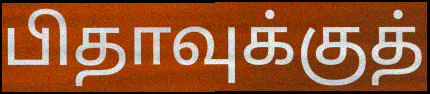
பிதாவுக்குத்